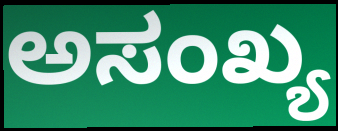
ಅಸಂಖ್ಯ